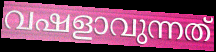
വഷളാവുന്നത്